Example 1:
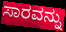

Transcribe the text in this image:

ಸಾರವನ್ನು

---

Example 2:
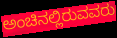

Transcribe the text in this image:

ಅಂಚಿನಲ್ಲಿರುವವರು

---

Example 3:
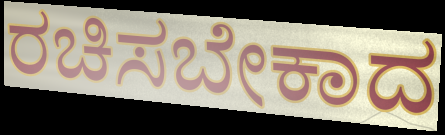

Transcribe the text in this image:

ರಚಿಸಬೇಕಾದ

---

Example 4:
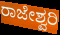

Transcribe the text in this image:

ರಾಜೇಶ್ವರಿ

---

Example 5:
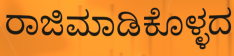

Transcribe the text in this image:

ರಾಜಿಮಾಡಿಕೊಳ್ಳದ